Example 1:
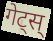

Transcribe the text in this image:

गेट्स्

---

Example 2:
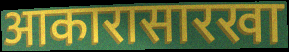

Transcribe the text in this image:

आकारासारखा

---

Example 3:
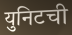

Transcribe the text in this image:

युनिटची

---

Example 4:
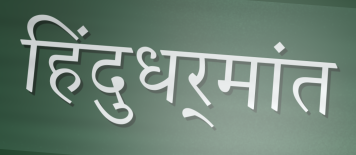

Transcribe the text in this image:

हिंदुधर्मांत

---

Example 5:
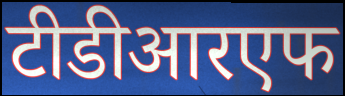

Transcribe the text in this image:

टीडीआरएफ